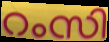
റംസി